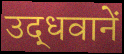
उद्धवानें